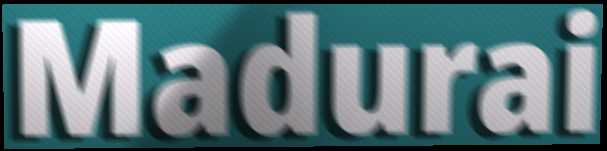
Madurai